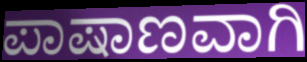
ಪಾಷಾಣವಾಗಿ